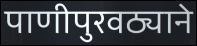
पाणीपुरवठ्याने